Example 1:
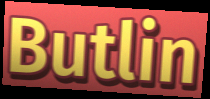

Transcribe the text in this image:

Butlin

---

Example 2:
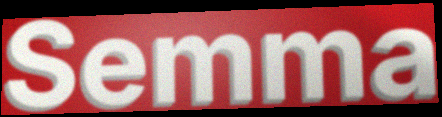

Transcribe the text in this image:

Semma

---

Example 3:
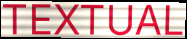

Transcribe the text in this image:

TEXTUAL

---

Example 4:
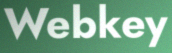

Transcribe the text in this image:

Webkey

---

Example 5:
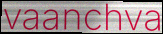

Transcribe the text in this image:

vaanchva